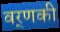
वर्णकी